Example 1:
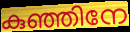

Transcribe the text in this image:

കുഞ്ഞിനേ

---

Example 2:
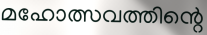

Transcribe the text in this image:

മഹോത്സവത്തിന്റെ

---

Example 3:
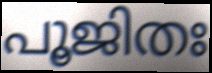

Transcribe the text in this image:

പൂജിതഃ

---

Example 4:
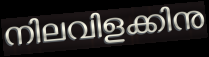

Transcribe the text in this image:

നിലവിളക്കിനു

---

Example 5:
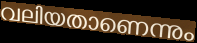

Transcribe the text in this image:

വലിയതാണെന്നും